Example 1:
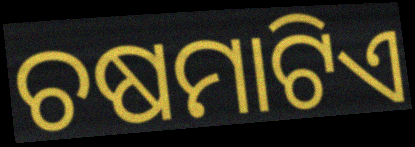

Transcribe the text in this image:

ଚଷମାଟିଏ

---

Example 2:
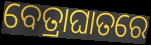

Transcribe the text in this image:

ବେତ୍ରାଘାତରେ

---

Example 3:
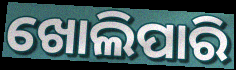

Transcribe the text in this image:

ଖୋଲିପାରି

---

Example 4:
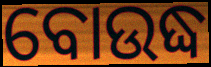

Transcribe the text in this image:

ବୋଉଦ୍ଧ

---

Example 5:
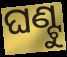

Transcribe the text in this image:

ଘଣ୍ଟୁ